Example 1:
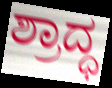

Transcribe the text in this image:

ಶ್ರಾದ್ಧ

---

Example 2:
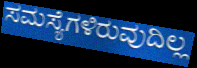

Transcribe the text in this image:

ಸಮಸ್ಯೆಗಳಿರುವುದಿಲ್ಲ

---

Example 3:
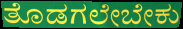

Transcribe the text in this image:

ತೊಡಗಲೇಬೇಕು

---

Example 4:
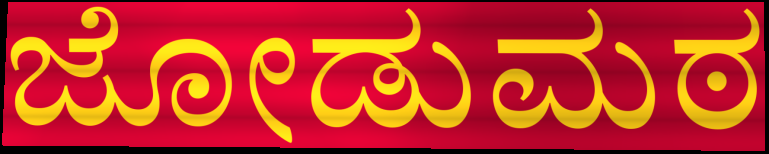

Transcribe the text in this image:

ಜೋಡುಮಠ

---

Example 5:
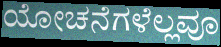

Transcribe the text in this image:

ಯೋಚನೆಗಳೆಲ್ಲವೂ